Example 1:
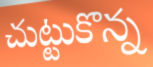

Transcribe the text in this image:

చుట్టుకొన్న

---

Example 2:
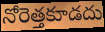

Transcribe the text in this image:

నోరెత్తకూడదు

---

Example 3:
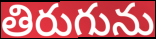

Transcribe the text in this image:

తిరుగును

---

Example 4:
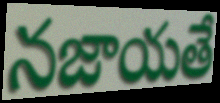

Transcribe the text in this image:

నజాయతే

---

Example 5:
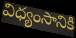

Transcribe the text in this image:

విధ్యంసానికి